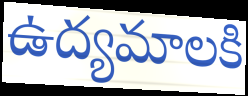
ఉద్యమాలకి